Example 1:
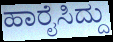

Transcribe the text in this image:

ಹಾರೈಸಿದ್ದು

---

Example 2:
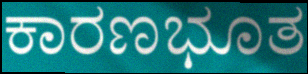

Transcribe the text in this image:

ಕಾರಣಭೂತ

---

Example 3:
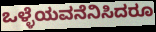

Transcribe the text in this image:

ಒಳ್ಳೆಯವನೆನಿಸಿದರೂ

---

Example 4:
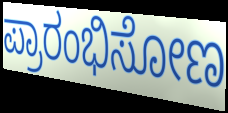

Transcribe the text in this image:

ಪ್ರಾರಂಭಿಸೋಣ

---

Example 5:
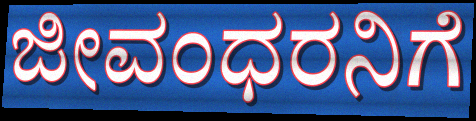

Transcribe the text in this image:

ಜೀವಂಧರನಿಗೆ